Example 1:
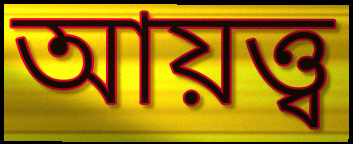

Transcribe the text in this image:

আয়ত্ত্ব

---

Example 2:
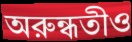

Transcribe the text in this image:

অরুন্ধতীও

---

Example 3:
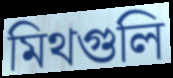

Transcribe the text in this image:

মিথগুলি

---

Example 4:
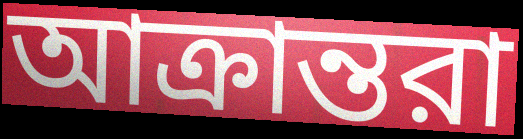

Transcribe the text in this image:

আক্রান্তরা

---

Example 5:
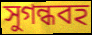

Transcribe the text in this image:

সুগন্ধবহ